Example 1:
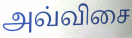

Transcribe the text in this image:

அவ்விசை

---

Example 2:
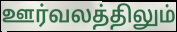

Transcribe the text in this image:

ஊர்வலத்திலும்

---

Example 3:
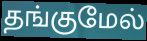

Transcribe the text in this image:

தங்குமேல்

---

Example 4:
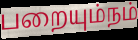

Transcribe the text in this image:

பறையும்நம்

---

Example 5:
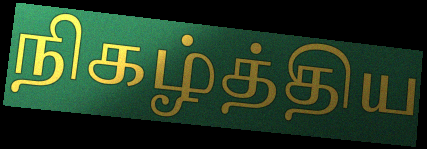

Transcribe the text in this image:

நிகழ்த்திய